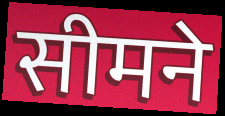
सीमने